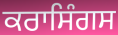
ਕਰਾਸਿੰਗਸ